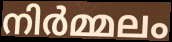
നിർമ്മലം